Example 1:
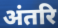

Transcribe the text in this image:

अंतरि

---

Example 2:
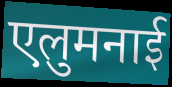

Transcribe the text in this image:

एलुमनाई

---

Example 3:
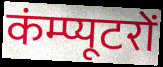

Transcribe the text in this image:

कंम्प्यूटरों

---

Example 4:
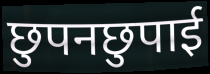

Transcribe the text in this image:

छुपनछुपाई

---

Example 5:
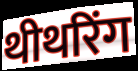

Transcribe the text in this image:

थीथरिंग